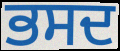
ਭਸਦ